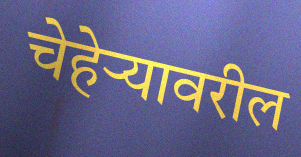
चेहेऱ्यावरील